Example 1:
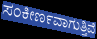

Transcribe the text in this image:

ಸಂಕೀರ್ಣವಾಗುತ್ತಿವೆ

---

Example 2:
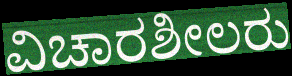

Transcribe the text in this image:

ವಿಚಾರಶೀಲರು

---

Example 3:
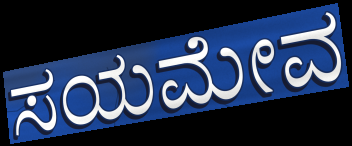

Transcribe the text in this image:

ಸಯಮೇವ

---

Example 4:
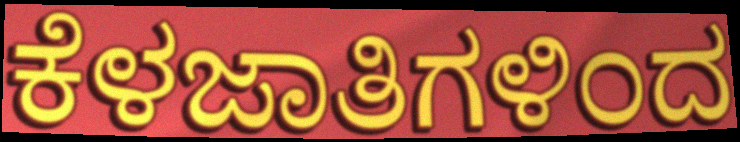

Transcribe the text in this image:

ಕೆಳಜಾತಿಗಳಿಂದ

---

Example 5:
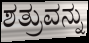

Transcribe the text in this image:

ಶತ್ರುವನ್ನು